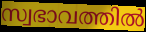
സ്വഭാവത്തിൽ